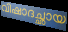
വിഷാദച്ഛായ